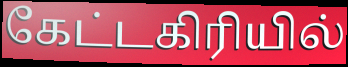
கேட்டகிரியில்